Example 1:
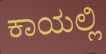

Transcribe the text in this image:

ಕಾಯಲ್ಲಿ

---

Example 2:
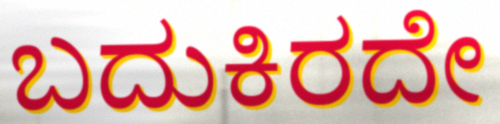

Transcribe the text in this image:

ಬದುಕಿರದೇ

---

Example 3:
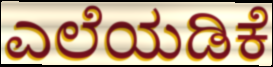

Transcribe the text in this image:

ಎಲೆಯಡಿಕೆ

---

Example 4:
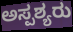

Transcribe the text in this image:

ಅಸ್ಪಶ್ಯರು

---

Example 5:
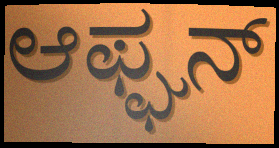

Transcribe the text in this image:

ಆಫ್ಘನ್